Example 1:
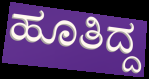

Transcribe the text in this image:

ಹೂತಿದ್ದ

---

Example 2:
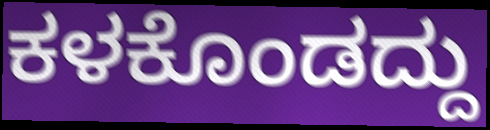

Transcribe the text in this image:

ಕಳಕೊಂಡದ್ದು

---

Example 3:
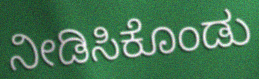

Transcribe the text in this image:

ನೀಡಿಸಿಕೊಂಡು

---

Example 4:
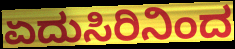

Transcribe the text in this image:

ಏದುಸಿರಿನಿಂದ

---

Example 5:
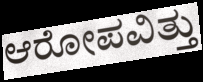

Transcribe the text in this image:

ಆರೋಪವಿತ್ತು